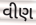
વીણ